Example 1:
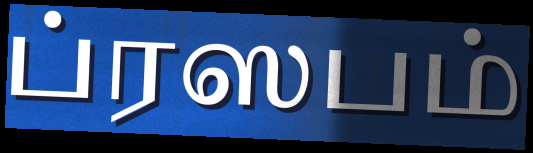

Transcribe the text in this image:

ப்ரஸபம்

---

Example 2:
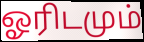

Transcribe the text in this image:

ஓரிடமும்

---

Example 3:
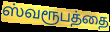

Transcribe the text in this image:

ஸ்வரூபத்தை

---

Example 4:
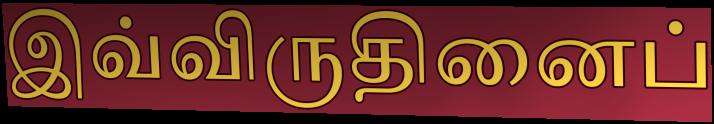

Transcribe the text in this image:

இவ்விருதினைப்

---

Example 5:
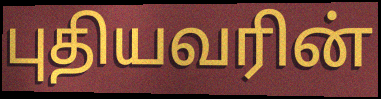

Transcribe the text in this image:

புதியவரின்